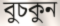
বুচকুন